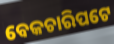
ବେକଚାରିପଟେ